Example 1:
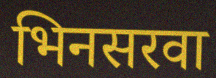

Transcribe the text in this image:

भिनसरवा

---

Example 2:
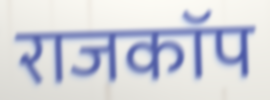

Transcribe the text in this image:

राजकॉप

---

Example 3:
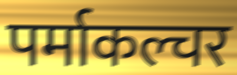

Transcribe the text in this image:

पर्माकल्चर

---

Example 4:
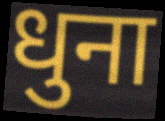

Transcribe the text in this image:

धुना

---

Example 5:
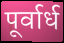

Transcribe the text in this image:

पूर्वार्ध